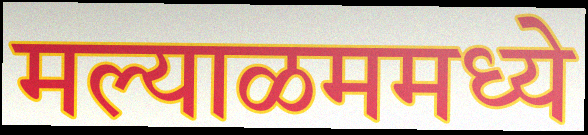
मल्याळममध्ये